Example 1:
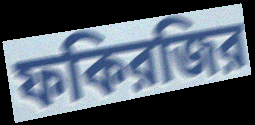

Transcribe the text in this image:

ফকিরজির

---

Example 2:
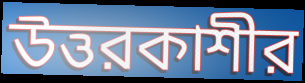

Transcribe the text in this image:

উত্তরকাশীর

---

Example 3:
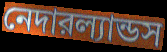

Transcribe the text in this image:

নেদারল্যান্ডস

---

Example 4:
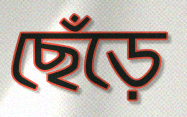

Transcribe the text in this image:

ছেঁড়ে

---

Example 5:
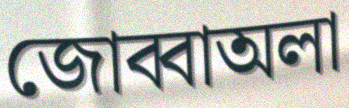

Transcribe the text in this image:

জোব্বাঅলা